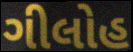
ગીલોહ